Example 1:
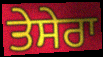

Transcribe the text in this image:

ਤੇਸੇਰਾ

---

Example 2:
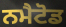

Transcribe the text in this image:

ਨਮੈਟੋਡ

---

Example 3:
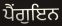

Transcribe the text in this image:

ਪੈਂਗੁਇਨ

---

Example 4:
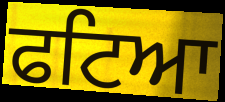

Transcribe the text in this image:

ਫਟਿਆ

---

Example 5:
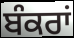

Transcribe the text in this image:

ਬੰਕਰਾਂ